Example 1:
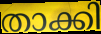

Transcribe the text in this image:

താക്കി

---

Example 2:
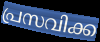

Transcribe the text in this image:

പ്രസവിക്ക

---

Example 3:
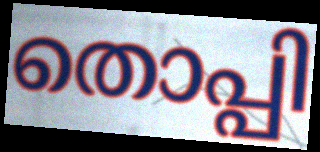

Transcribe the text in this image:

തൊപ്പി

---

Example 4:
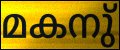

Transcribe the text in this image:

മകനു്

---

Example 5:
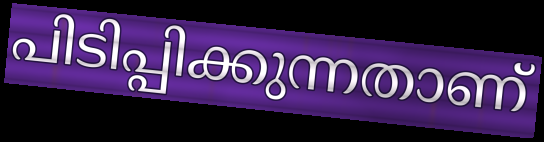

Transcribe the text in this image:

പിടിപ്പിക്കുന്നതാണ്